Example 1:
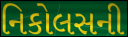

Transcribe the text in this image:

નિકોલસની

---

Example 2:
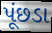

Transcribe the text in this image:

પૂંછડા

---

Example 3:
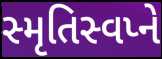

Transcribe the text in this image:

સ્મૃતિસ્વપ્ને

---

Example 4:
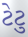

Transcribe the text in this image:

ટેટુ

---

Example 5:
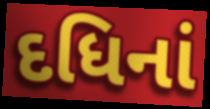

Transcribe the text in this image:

દધિનાં